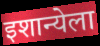
इशान्येला